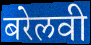
बरेलवी